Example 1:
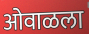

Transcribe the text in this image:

ओवाळला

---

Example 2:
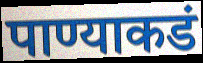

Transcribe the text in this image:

पाण्याकडं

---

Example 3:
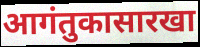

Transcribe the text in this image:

आगंतुकासारखा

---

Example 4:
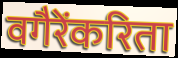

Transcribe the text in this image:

वगैरेंकरिता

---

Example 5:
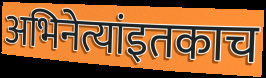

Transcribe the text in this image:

अभिनेत्यांइतकाच